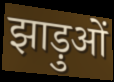
झाड़ुओं